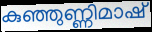
കുഞ്ഞുണ്ണിമാഷ്